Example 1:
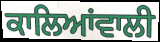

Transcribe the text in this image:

ਕਾਲਿਆਂਵਾਲੀ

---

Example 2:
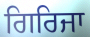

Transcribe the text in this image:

ਗਿਰਿਜਾ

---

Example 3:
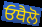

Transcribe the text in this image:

ਓਥੈਲੋ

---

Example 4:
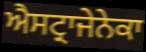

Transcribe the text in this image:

ਐਸਟ੍ਰਾਜੇਨੇਕਾ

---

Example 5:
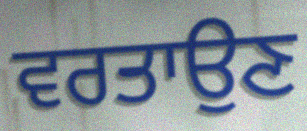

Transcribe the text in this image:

ਵਰਤਾਉਣ